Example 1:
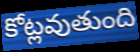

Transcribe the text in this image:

కోట్లవుతుంది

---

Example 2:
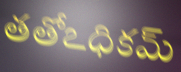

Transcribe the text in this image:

తతోఽధికమ్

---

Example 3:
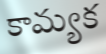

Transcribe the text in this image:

కామ్యక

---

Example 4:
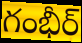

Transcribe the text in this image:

గంభీర్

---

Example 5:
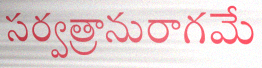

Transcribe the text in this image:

సర్వత్రానురాగమే